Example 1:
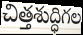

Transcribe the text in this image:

చిత్తశుద్ధిగల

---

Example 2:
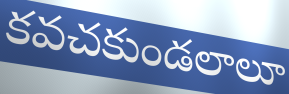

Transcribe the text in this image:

కవచకుండలాలూ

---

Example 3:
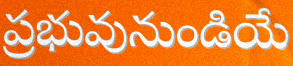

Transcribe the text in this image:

ప్రభువునుండియే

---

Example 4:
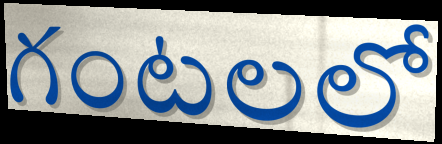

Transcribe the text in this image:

గంటలలో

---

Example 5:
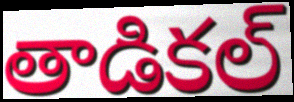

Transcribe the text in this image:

తాడికల్